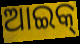
ଆଇକ୍